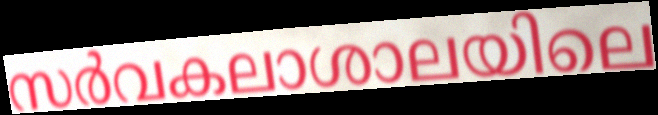
സർവകലാശാലയിലെ